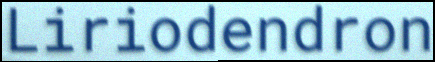
Liriodendron